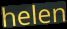
helen